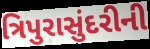
ત્રિપુરાસુંદરીની